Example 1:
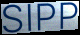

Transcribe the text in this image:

SIPP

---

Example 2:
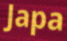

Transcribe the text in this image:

Japa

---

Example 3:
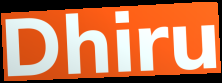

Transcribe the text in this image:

Dhiru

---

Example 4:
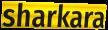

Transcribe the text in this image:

sharkara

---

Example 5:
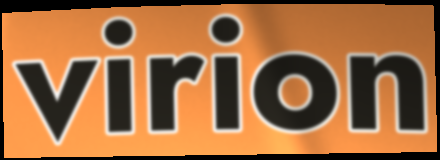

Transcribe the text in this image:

virion